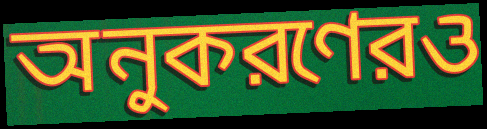
অনুকরণেরও